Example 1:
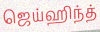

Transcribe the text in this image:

ஜெய்ஹிந்த்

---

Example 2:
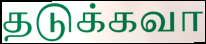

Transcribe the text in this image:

தடுக்கவா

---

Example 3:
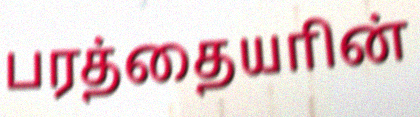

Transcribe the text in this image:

பரத்தையரின்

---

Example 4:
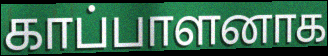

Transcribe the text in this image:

காப்பாளனாக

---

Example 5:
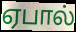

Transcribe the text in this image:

ஏபால்